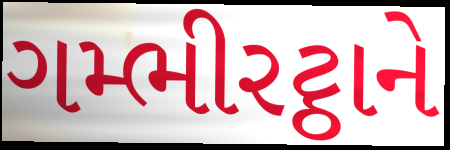
ગમ્ભીરટ્ઠાને